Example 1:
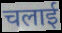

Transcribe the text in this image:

चलाई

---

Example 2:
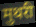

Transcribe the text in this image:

मुथरी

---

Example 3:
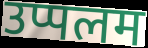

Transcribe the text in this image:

उप्पलम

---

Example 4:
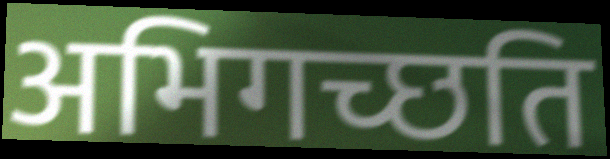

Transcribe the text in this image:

अभिगच्छति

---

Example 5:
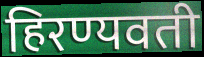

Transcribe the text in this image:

हिरण्यवती